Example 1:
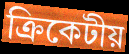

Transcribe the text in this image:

ক্রিকেটীয়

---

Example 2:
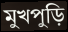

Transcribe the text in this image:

মুখপুড়ি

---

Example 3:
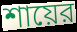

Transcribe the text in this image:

শায়ের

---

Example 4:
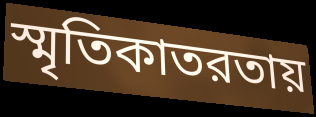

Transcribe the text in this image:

স্মৃতিকাতরতায়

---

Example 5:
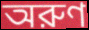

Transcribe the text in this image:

অরুণ